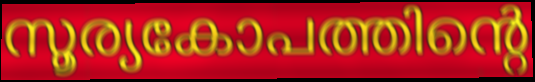
സൂര്യകോപത്തിന്റെ